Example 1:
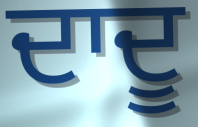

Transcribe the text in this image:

ਦਾਦੂ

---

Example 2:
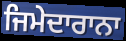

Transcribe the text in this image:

ਜਿਮੇਦਾਰਾਨਾ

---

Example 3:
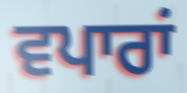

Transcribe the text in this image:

ਵਪਾਰਾਂ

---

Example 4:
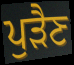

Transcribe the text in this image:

ਪੁੜੈਣ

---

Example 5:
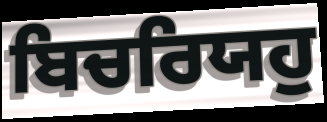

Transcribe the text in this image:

ਬਿਚਰਿਯਹੁ